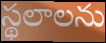
స్థలాలను